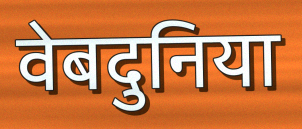
वेबदुनिया